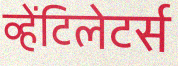
व्हेंटिलेटर्स